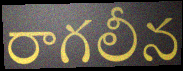
రాగలీన